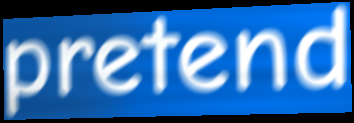
pretend